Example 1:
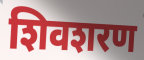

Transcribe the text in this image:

शिवशरण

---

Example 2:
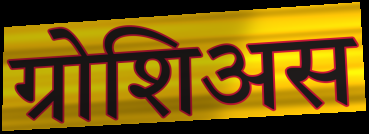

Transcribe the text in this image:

ग्रोशिअस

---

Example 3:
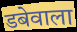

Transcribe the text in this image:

डबेवाला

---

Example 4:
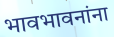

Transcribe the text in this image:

भावभावनांना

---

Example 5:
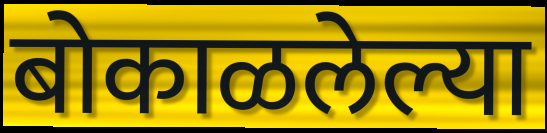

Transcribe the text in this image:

बोकाळलेल्या